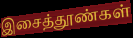
இசைத்தூண்கள்